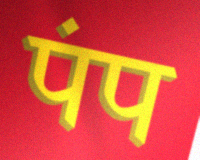
पंप